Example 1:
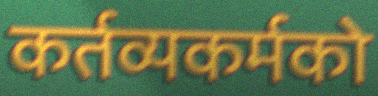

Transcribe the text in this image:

कर्तव्यकर्मको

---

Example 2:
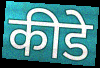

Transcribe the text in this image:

कीडे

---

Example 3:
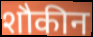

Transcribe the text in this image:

शौकीन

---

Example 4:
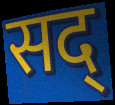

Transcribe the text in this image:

सद्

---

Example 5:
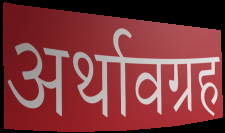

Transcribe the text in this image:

अर्थावग्रह